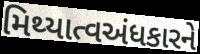
મિથ્યાત્વઅંધકારને